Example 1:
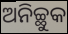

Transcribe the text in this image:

ଅନିଚ୍ଛୁକ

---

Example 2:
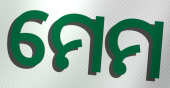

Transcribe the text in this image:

ମେମ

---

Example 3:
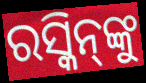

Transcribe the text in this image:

ରସ୍କିନ୍‌ଙ୍କୁ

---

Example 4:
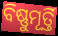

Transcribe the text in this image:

ବିଷ୍ଣୁମୂର୍ତ୍ତି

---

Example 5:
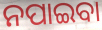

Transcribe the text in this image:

ନପାଇବା